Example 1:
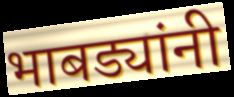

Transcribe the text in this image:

भाबड्यांनी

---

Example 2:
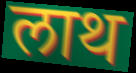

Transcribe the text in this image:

लाथ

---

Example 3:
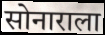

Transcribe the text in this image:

सोनाराला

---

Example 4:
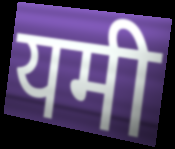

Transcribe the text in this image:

यमी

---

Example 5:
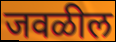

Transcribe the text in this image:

जवळील